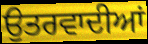
ਉਤਰਵਾਦੀਆਂ